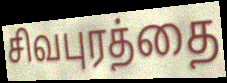
சிவபுரத்தை